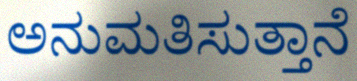
ಅನುಮತಿಸುತ್ತಾನೆ